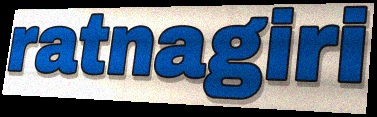
ratnagiri